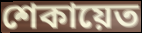
শেকায়েত